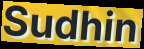
Sudhin